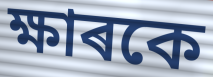
ক্ষাৰকে